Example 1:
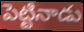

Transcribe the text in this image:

పెట్టినాడు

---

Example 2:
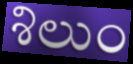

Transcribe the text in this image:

శిలుం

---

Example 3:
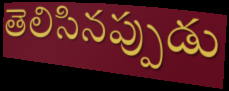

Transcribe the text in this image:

తెలిసినప్పుడు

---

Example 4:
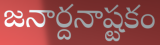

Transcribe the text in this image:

జనార్దనాష్టకం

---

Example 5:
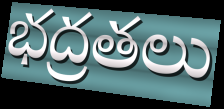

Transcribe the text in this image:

భద్రతలు